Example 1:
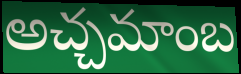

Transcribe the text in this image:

అచ్చమాంబ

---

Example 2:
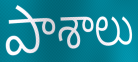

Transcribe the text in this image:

పాశాలు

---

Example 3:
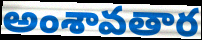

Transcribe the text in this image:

అంశావతార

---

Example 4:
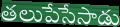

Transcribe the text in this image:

తలుపేసేసాడు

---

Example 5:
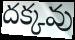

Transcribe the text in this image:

దక్కవు